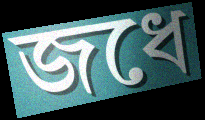
জধে